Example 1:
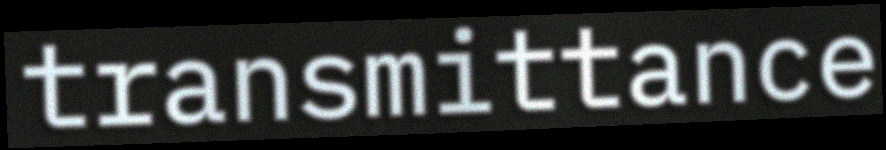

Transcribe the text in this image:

transmittance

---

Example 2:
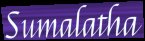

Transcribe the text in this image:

Sumalatha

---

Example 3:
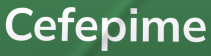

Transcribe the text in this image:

Cefepime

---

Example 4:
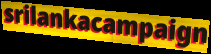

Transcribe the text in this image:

srilankacampaign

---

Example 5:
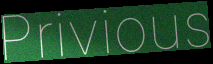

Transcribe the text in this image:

Privious